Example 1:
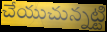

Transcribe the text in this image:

చేయుచున్నట్టి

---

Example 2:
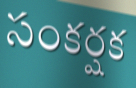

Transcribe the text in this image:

సంకర్షక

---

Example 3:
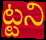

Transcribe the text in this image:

ట్టని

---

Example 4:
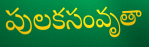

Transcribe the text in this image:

పులకసంవృతా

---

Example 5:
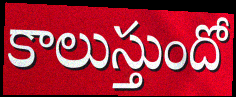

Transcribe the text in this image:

కాలుస్తుందో